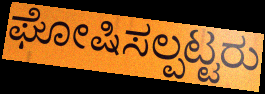
ಘೋಷಿಸಲ್ಪಟ್ಟರು